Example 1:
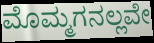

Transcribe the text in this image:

ಮೊಮ್ಮಗನಲ್ಲವೇ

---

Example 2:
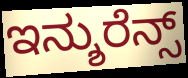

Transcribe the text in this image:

ಇನ್ಶುರೆನ್ಸ್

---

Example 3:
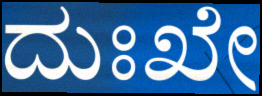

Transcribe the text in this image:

ದುಃಖೇ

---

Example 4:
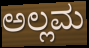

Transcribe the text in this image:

ಅಲ್ಲಮ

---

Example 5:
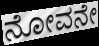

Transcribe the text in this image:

ನೋವನೇ